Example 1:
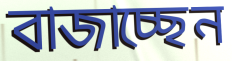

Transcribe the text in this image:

বাজাচ্ছেন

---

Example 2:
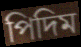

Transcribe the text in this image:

পিদিম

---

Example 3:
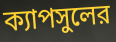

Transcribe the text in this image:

ক্যাপসুলের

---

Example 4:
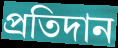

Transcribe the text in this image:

প্রতিদান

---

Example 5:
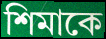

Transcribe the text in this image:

শিমাকে